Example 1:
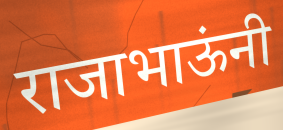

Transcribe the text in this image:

राजाभाऊंनी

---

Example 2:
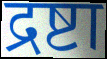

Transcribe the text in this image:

द्रष्टा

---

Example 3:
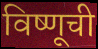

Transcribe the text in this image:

विष्णूची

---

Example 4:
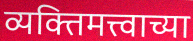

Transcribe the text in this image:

व्यक्तिमत्त्वाच्या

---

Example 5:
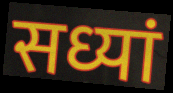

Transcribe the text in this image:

सध्यां